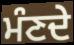
ਮੰਣਦੇ